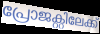
പ്രോജക്റ്റിലേക്ക്